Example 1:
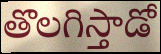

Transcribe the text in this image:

తొలగిస్తాడో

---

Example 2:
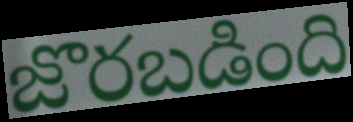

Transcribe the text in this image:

జొరబడింది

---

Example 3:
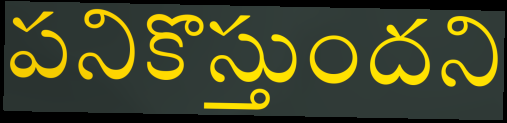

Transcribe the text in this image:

పనికొస్తుందని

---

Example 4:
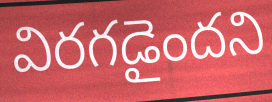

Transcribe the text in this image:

విరగడైందని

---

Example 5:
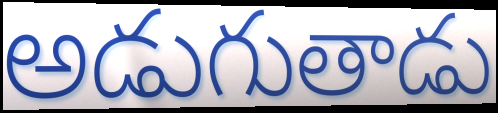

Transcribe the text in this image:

అడుగుతాడు